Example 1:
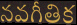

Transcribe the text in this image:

నవగీతిక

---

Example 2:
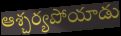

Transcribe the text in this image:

ఆశ్చర్యపోయాడు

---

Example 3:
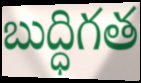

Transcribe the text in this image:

బుద్ధిగత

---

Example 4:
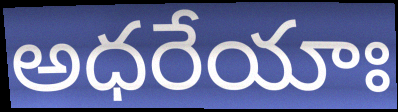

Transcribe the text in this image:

అధరేయాః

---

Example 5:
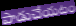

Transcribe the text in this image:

పాడుచేయటం